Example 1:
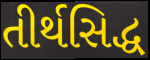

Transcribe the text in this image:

તીર્થસિદ્ધ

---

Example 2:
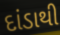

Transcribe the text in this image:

દાંડાથી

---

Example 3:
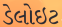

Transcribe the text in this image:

ડેલોઇટ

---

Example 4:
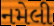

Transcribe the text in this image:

નમેલી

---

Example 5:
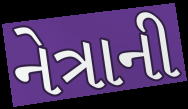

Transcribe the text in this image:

નેત્રાની